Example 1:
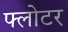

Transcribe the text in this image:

फ्लोटर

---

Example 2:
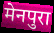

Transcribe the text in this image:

मेनपुरा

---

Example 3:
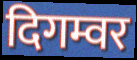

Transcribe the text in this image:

दिगम्वर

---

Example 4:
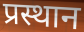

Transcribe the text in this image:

प्रस्थान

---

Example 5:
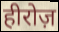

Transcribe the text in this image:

हीरोज़